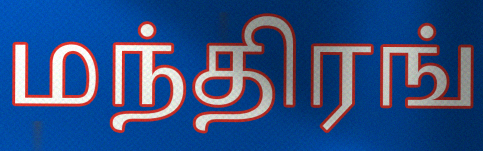
மந்திரங்